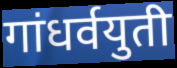
गांधर्वयुती